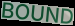
BOUND